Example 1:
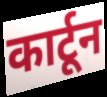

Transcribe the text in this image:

कार्टून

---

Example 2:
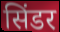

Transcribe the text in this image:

सिंडर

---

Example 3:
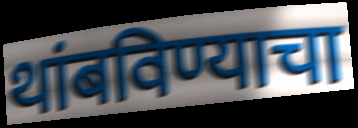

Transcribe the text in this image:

थांबविण्याचा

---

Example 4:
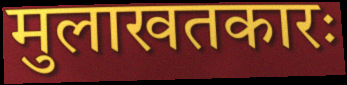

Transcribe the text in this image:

मुलाखतकारः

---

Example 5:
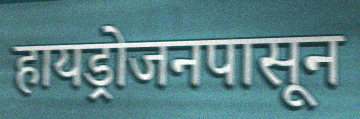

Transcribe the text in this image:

हायड्रोजनपासून